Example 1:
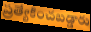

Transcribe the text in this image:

ప్రత్యేకించబడ్డారు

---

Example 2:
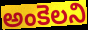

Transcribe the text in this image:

అంకెలని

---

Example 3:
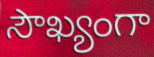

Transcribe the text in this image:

సౌఖ్యంగా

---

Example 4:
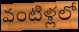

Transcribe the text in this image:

వంటిళ్లలో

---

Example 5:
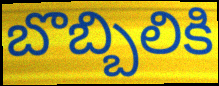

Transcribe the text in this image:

బొబ్బిలికి